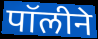
पॉलीने